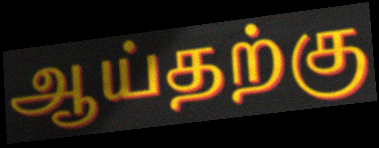
ஆய்தற்கு